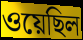
ওয়েছিল